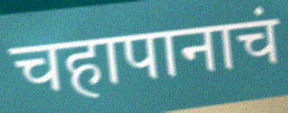
चहापानाचं